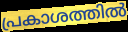
പ്രകാശത്തിൽ